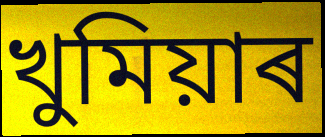
খুমিয়াৰ